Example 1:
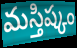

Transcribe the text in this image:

మస్తిష్కం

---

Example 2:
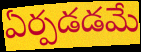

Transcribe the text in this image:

ఏర్పడడమే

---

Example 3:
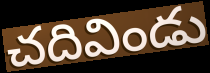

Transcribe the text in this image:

చదివిండు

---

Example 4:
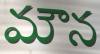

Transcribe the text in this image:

మౌన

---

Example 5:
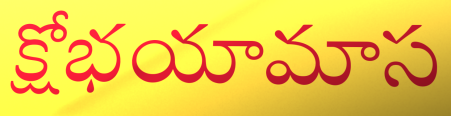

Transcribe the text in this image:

క్షోభయామాస